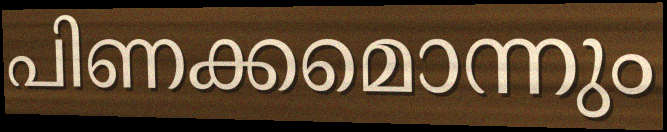
പിണക്കമൊന്നും